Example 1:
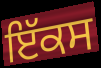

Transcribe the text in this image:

ਇੱਕਸ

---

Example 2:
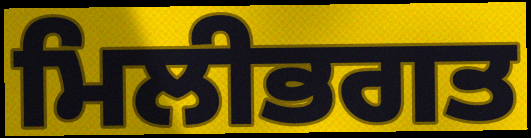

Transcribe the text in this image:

ਮਿਲੀਭਗਤ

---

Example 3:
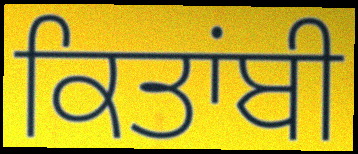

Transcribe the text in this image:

ਕਿਤਾਂਬੀ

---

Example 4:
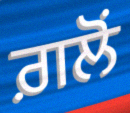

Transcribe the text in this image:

ਗ਼ਲੋਂ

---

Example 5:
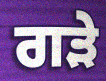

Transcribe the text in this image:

ਗੜੇ